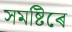
সমষ্টিৰে